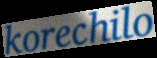
korechilo